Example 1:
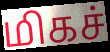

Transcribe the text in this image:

மிகச்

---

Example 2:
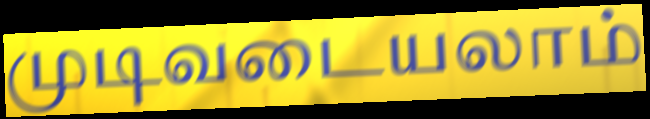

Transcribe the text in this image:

முடிவடையலாம்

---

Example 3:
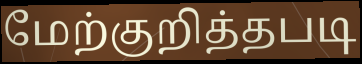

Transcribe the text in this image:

மேற்குறித்தபடி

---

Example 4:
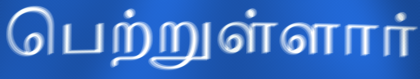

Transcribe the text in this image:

பெற்றுள்ளார்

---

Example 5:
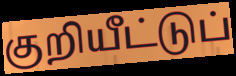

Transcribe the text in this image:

குறியீட்டுப்